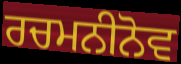
ਰਚਮਨੀਨੋਵ